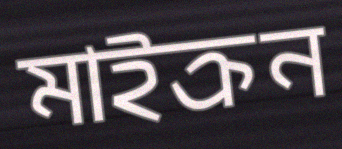
মাইক্রন